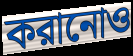
করানোও